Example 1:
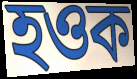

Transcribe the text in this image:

হওক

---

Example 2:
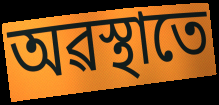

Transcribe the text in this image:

অৱস্থাতে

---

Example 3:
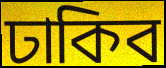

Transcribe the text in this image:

ঢাকিব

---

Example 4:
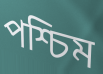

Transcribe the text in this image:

পশ্চিম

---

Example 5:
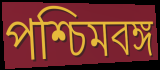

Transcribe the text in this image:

পশ্চিমবঙ্গ